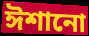
ঈশানো